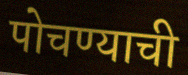
पोचण्याची